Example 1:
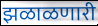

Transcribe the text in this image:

झळाळणारी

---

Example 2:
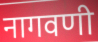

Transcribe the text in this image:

नागवणी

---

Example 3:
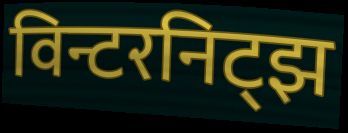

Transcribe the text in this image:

विन्टरनिट्झ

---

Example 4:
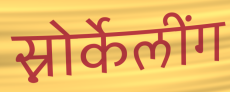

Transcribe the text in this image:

स्नोर्केलींग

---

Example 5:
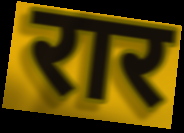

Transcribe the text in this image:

रार